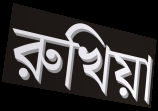
রুখিয়া